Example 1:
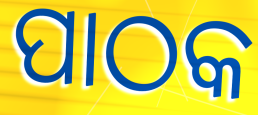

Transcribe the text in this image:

ପାଠକ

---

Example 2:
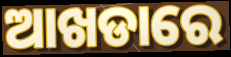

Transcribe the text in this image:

ଆଖଡାରେ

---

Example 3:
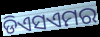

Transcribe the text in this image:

ଡିଏସଏମର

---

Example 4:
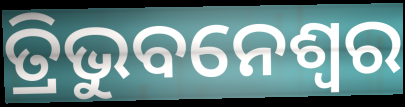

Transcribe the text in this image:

ତ୍ରିଭୁବନେଶ୍ବର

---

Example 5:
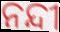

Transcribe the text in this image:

ନନ୍ଦୀ